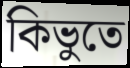
কিভুতে